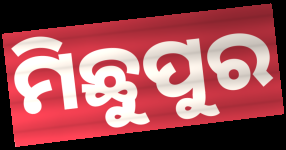
ମିଛୁପୁର